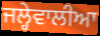
ਜਲ੍ਹੇਵਾਲੀਆ